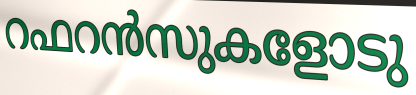
റഫറൻസുകളോടു